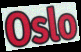
Oslo